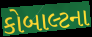
કોબાલ્ટના